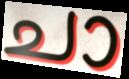
ചാ